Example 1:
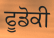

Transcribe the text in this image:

ਫੂਡੋਕੀ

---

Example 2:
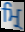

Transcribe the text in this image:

ਮ੍ਰਿ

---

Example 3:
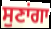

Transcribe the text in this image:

ਸੁਣਾਂਗਾ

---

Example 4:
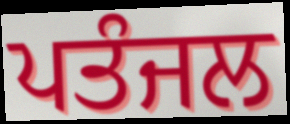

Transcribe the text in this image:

ਪਤੰਜਲ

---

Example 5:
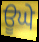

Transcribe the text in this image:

ਊਘੇ